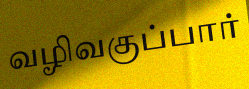
வழிவகுப்பார்